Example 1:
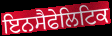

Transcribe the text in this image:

ਇਨਸੈਫੇਲਿਟਿਕ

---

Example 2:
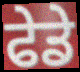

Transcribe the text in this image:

ਫੇਡੇ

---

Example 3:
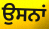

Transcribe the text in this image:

ਉਸਨਾਂ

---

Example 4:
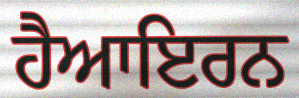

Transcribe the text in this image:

ਹੈਆਇਰਨ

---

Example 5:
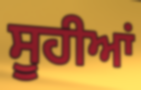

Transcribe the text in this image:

ਸੂਹੀਆਂ